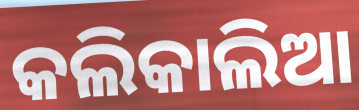
କଲିକାଲିଆ